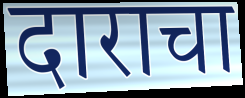
दाराचा